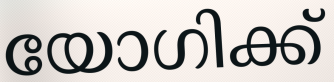
യോഗിക്ക്